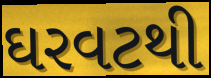
ઘરવટથી